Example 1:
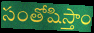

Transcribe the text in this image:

సంతోషిస్తాం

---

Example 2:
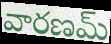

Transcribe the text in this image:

వారణమ్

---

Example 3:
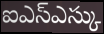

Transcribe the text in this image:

ఐఎస్ఎస్కు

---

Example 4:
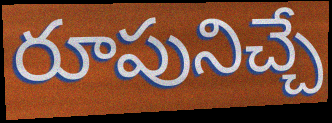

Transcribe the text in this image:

రూపునిచ్చే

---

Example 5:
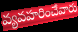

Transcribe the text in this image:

వ్యవహరించేవారు